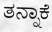
ತನ್ನಾಕೆ